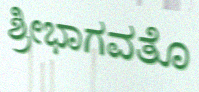
ಶ್ರೀಭಾಗವತೊ